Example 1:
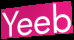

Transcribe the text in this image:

Yeeb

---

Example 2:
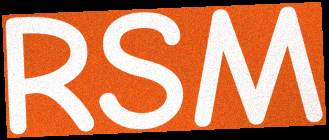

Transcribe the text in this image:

RSM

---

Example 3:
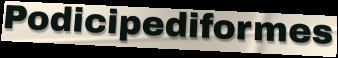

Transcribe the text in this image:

Podicipediformes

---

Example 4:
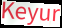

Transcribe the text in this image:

Keyur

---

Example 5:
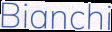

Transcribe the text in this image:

Bianchi